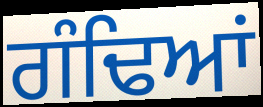
ਗੰਢਿਆਂ